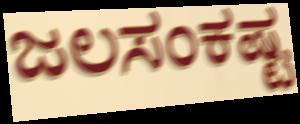
ಜಲಸಂಕಷ್ಟ